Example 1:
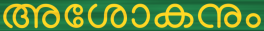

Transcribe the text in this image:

അശോകനും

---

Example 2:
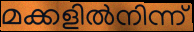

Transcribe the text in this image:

മക്കളിൽനിന്ന്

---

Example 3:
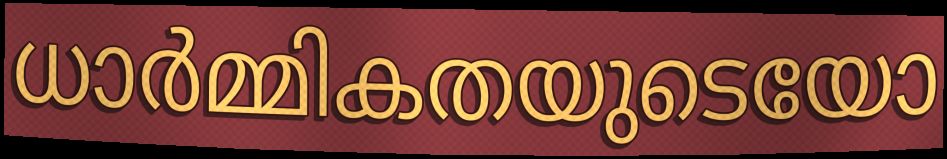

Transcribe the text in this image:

ധാർമ്മികതയുടെയോ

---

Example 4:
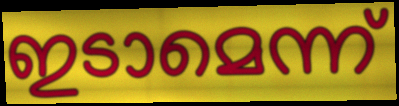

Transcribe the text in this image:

ഇടാമെന്ന്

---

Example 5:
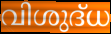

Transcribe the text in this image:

വിശുദ്‌ധ